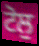
ਟੋਲੁ